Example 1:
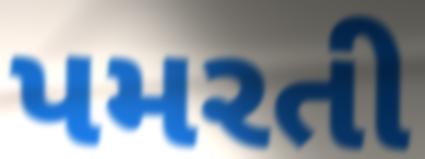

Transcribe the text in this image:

પમરતી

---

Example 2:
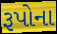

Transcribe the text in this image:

રૂપોના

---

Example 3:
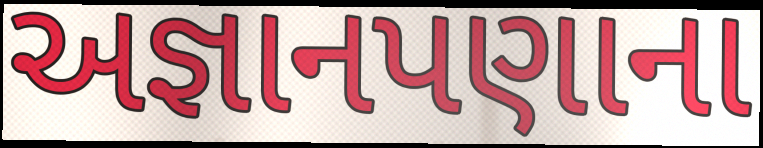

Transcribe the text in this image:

અજ્ઞાનપણાના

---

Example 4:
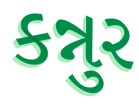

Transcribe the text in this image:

કન્નુર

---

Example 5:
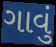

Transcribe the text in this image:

ગાવું